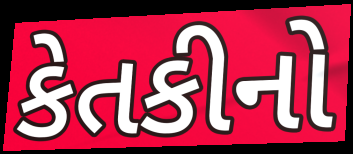
કેતકીનો